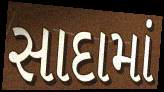
સાદામાં